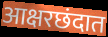
आक्षरछंदात